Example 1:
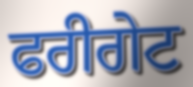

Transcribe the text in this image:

ਫਰੀਗੇਟ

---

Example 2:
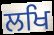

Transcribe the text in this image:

ਲਖਿ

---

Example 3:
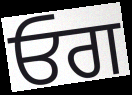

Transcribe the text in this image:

ਓਗ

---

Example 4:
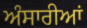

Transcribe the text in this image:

ਅੰਸਾਰੀਆਂ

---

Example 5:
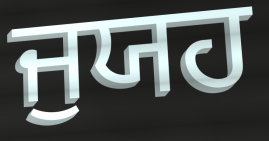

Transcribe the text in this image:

ਜੁਯਹ